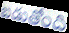
బడుతోంది